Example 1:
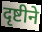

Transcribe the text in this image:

दृष्टीने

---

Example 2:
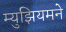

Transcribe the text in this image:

म्युझियमने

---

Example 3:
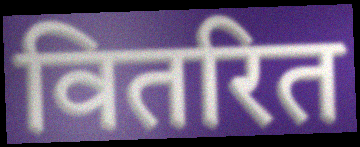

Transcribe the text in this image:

वितरित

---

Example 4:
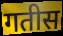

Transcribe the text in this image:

गतीस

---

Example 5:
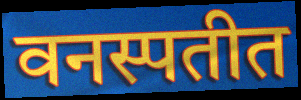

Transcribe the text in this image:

वनस्पतीत